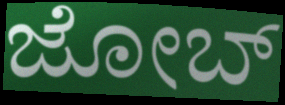
ಜೋಬ್